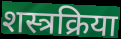
शस्त्रक्रिया